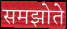
समझोते